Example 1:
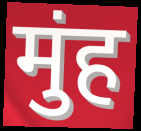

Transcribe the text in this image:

मुंह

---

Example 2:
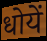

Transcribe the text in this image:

धोयें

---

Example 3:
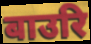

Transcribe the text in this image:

बाउरि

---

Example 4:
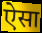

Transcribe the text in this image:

ऐेसा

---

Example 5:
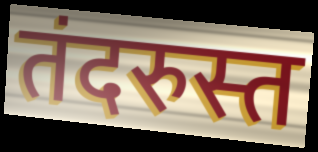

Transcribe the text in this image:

तंदरुस्त